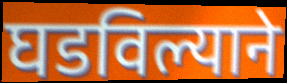
घडविल्याने